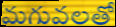
మగువలతో